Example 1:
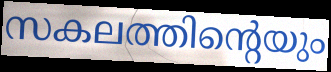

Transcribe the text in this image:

സകലത്തിന്റെയും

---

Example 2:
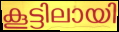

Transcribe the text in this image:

കൂട്ടിലായി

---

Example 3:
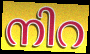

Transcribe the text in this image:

നിറ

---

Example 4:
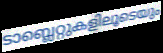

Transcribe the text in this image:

ടാബ്ലെറ്റുകളിലൂടെയും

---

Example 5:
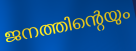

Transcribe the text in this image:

ജനത്തിന്റെയും